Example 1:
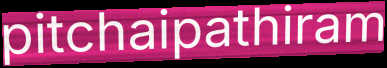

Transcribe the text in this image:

pitchaipathiram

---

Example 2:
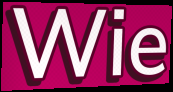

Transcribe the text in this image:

Wie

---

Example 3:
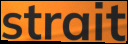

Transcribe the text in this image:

strait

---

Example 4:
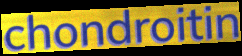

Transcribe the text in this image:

chondroitin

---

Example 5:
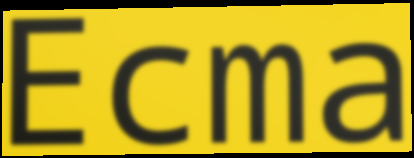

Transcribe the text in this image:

Ecma